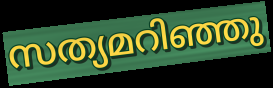
സത്യമറിഞ്ഞു